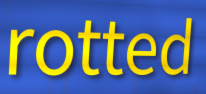
rotted